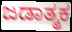
ಜಡಾತ್ಮಕ